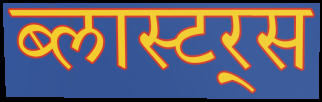
ब्लास्टर्स